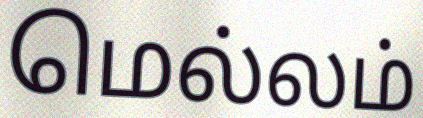
மெல்லம்